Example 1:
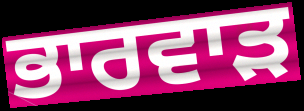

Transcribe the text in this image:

ਭਾਰਵਾੜ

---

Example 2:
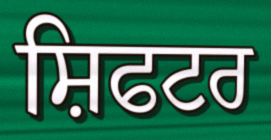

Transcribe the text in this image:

ਸ਼ਿਫਟਰ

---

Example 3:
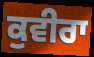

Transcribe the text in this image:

ਕੁਵੀਰਾ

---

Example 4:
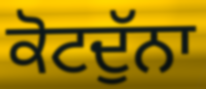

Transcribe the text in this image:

ਕੋਟਦੁੱਨਾ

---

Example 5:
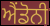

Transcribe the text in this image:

ਐਂਡੋਨੀ